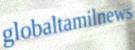
globaltamilnews